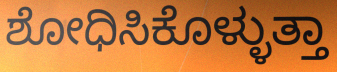
ಶೋಧಿಸಿಕೊಳ್ಳುತ್ತಾ